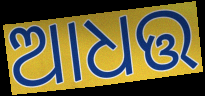
ଆଧତ୍ତ